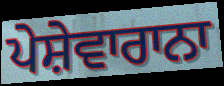
ਪੇਸ਼ੇਵਾਰਾਨਾ